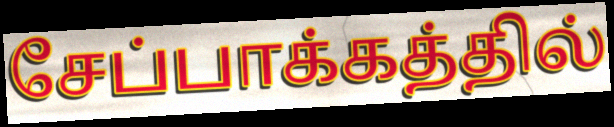
சேப்பாக்கத்தில்